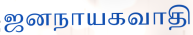
ஜனநாயகவாதி